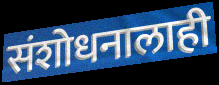
संशोधनालाही